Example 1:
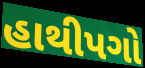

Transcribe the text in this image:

હાથીપગો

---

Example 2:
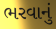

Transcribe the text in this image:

ભરવાનું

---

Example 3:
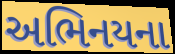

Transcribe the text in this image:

અભિનયના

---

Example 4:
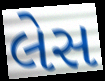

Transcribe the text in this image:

લેસ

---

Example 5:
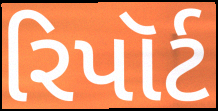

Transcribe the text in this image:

રિપૉર્ટ